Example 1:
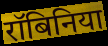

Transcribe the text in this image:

रॉबिनिया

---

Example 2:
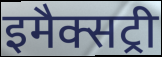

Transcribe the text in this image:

इमैक्सट्री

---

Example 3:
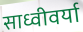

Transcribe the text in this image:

साध्वीवर्या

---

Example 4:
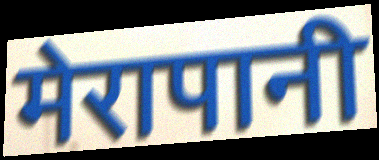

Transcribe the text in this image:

मेरापानी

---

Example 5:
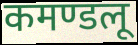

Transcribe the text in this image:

कमण्डलू